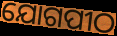
ଯୋଗପୀଠ